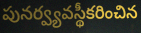
పునర్వ్యవస్థీకరించిన